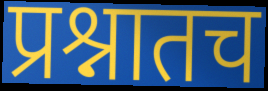
प्रश्नातच